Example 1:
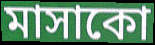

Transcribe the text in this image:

মাসাকো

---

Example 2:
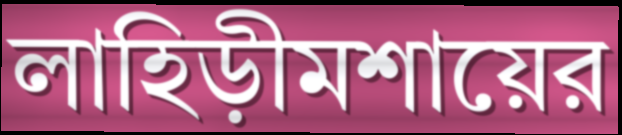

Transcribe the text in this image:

লাহিড়ীমশায়ের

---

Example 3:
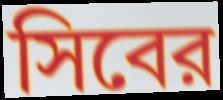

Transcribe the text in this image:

সিবের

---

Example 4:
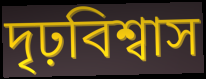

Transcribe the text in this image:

দৃঢ়বিশ্বাস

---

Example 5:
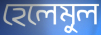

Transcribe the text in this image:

হেলেমুল